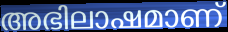
അഭിലാഷമാണ്